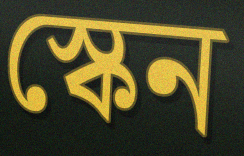
স্কেন